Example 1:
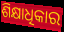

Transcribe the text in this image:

ଶିକ୍ଷାଧିକାର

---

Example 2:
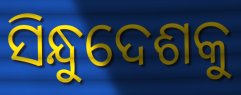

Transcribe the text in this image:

ସିନ୍ଧୁଦେଶକୁ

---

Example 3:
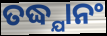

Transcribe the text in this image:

ତଦ୍ଧ୍ଯାନଂ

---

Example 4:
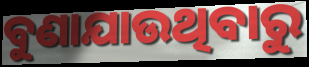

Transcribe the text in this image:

ବୁଣାଯାଉଥିବାରୁ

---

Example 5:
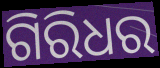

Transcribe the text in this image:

ଗିରିଧର